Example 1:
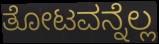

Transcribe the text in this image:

ತೋಟವನ್ನೆಲ್ಲ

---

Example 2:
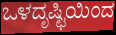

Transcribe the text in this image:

ಒಳದೃಷ್ಟಿಯಿಂದ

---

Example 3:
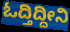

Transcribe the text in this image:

ಓದ್ತಿದ್ದೀನಿ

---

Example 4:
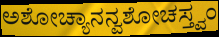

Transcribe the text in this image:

ಅಶೋಚ್ಯಾನನ್ವಶೋಚಸ್ತ್ವಂ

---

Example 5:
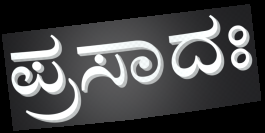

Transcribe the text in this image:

ಪ್ರಸಾದಃ